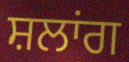
ਸ਼ਲਾਂਗ